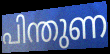
പിന്തുണ